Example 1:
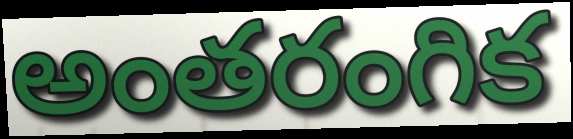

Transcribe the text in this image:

అంతరంగిక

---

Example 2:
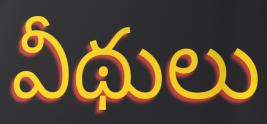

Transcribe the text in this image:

వీథులు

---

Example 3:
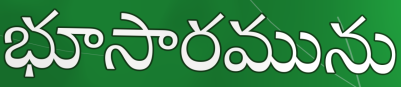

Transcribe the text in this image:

భూసారమును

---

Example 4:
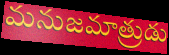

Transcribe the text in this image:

మనుజమాత్రుడు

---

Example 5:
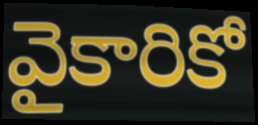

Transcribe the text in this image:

వైకారికో